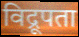
विद्रूपता